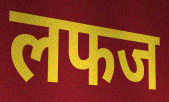
लफज